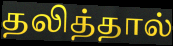
தலித்தால்